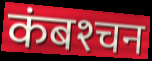
कंबश्चन